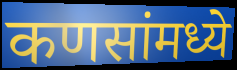
कणसांमध्ये